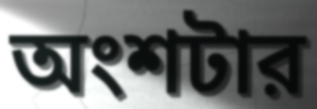
অংশটার